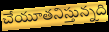
చేయూతనిస్తున్నది